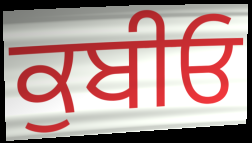
ਕੁਬੀਓ